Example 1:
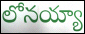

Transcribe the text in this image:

లోనయ్యా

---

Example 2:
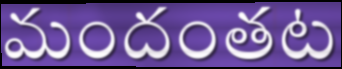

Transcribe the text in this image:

మందంతట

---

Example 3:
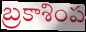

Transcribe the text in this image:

బ్రకాశింప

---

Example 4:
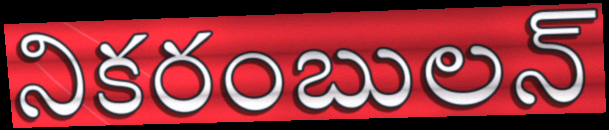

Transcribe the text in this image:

నికరంబులన్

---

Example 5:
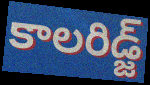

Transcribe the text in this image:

కాలరిడ్జ్